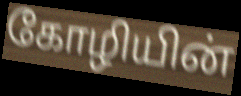
கோழியின்